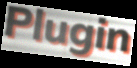
Plugin